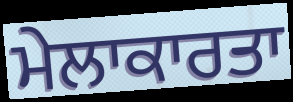
ਮੇਲਾਕਾਰਤਾ